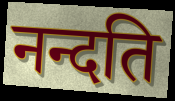
नन्दति